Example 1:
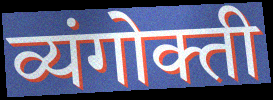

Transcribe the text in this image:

व्यंगोक्ती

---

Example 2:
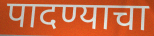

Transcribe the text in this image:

पादण्याचा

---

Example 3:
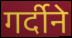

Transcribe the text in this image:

गर्दीने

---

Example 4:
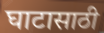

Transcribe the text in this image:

घाटासाठी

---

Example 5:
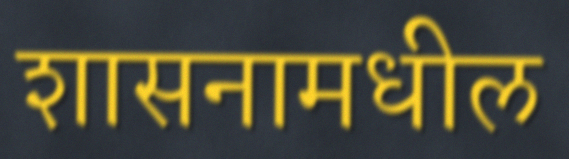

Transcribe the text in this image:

शासनामधील